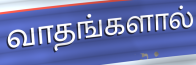
வாதங்களால்